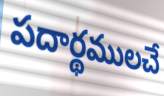
పదార్థములచే